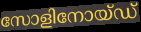
സോളിനോയ്ഡ്